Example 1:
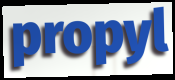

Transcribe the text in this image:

propyl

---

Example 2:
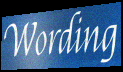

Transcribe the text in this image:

Wording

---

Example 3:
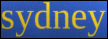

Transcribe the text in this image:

sydney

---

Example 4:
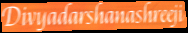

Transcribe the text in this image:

Divyadarshanashreeji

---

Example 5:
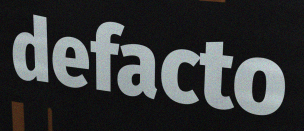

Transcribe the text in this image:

defacto